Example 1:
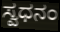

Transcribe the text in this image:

ಸ್ವಧನಂ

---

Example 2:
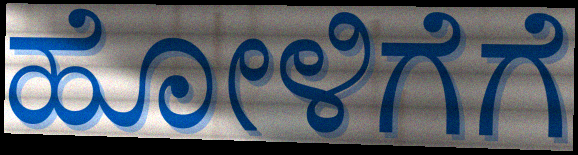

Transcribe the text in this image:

ಹೋಳಿಗೆಗೆ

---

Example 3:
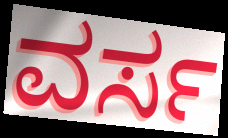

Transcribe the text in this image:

ವರ್ಸ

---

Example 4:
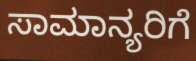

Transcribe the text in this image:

ಸಾಮಾನ್ಯರಿಗೆ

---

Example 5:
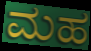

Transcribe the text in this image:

ಮಹ